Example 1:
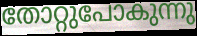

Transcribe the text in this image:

തോറ്റുപോകുന്നു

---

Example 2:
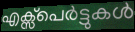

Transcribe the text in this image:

എക്സ്പെർട്ടുകൾ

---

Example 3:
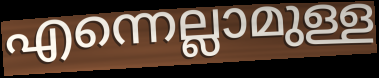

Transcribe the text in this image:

എന്നെല്ലാമുള്ള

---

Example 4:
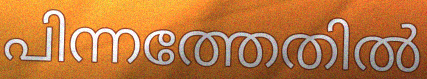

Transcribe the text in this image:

പിന്നത്തേതിൽ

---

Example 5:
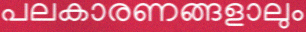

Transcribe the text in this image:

പലകാരണങ്ങളാലും